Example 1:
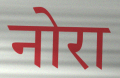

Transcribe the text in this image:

नोरा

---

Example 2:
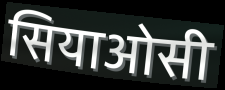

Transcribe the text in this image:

सियाओसी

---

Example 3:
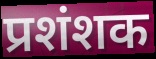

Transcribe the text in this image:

प्रशंशक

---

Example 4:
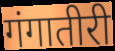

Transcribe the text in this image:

गंगातीरी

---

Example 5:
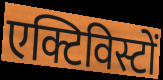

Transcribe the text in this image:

एक्टिविस्टों